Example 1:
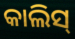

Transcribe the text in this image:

କାଲିସ୍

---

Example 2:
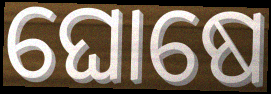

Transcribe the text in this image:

ଘୋଷେ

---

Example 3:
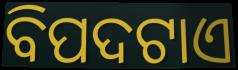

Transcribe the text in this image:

ବିପଦଟାଏ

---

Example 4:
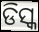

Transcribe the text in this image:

ଡିସ୍କ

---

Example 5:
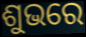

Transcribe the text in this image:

ଶୁଭରେ